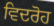
ਵਿਦਰੋਹ